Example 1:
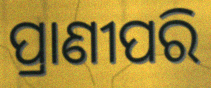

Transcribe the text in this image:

ପ୍ରାଣୀପରି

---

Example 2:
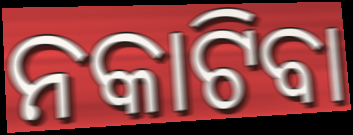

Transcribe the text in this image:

ନକାଟିବା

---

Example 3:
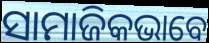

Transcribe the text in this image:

ସାମାଜିକଭାବେ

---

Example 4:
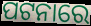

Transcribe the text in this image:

ପଟନାରେ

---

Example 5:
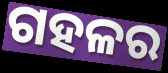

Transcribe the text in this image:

ଗହଳର